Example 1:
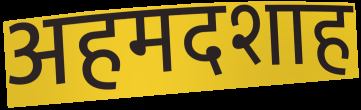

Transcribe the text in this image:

अहमदशाह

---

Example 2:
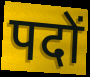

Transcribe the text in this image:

पदों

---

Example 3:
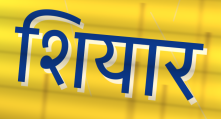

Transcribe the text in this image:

शियार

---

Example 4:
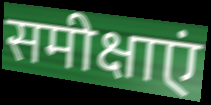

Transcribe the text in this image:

समीक्षाएं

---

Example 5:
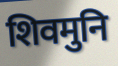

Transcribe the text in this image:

शिवमुनि